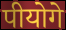
पीयोगे